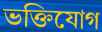
ভক্তিযোগ